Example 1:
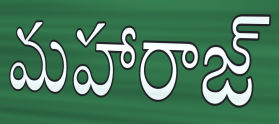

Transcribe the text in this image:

మహారాజ్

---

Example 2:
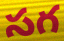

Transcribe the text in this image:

సగ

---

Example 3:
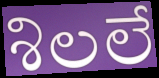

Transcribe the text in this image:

శిలలే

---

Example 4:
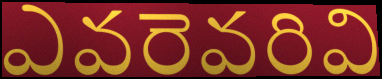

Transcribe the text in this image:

ఎవరెవరివి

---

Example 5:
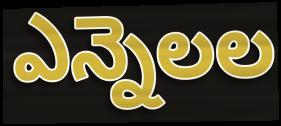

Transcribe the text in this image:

ఎన్నెలల